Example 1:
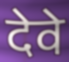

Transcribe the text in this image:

देवे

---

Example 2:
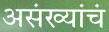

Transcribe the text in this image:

असंख्यांचं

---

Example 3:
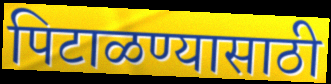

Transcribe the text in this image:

पिटाळण्यासाठी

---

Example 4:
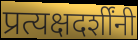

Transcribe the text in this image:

प्रत्यक्षदर्शींनी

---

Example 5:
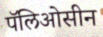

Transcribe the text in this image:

पॅलिओसीन